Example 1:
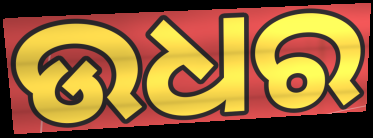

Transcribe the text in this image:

ଉଧର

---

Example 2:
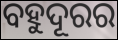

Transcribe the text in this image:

ବହୁଦୂରର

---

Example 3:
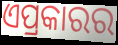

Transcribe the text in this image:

ଏପ୍ରକାରର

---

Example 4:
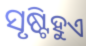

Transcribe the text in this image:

ସୃଷ୍ଟିହୁଏ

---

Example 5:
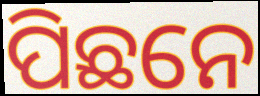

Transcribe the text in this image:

ପିଛନେ